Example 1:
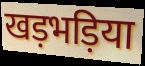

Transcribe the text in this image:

खड़भड़िया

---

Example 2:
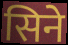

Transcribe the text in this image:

सिने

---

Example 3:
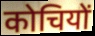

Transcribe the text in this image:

कोचियों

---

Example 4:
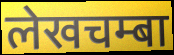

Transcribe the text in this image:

लेखचम्बा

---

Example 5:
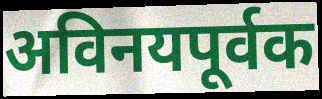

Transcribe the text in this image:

अविनयपूर्वक